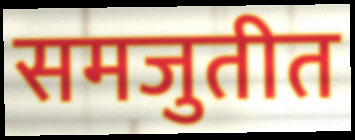
समजुतीत